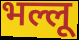
भल्लू